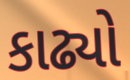
કાઢ્યો